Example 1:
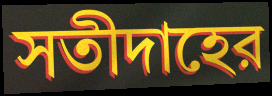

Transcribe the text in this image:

সতীদাহের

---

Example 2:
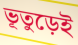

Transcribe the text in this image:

ভূতুড়েই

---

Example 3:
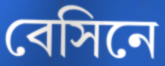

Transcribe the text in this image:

বেসিনে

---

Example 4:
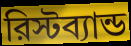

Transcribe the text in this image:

রিস্টব্যান্ড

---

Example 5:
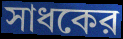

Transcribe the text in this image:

সাধকের